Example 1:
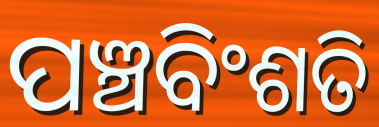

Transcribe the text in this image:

ପଞ୍ଚବିଂଶତି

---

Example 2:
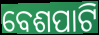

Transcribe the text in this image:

ବେଶପାଟି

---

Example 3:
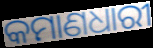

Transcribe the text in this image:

କମାଣଧାରୀ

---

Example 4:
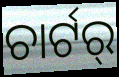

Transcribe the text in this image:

ଚାର୍ଟର୍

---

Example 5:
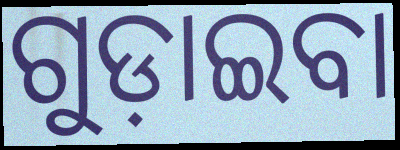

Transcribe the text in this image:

ଗୁଡ଼ାଇବା